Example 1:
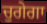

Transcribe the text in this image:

ਚੁਗੇਗਾ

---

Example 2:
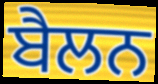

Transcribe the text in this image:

ਬੈਲਨ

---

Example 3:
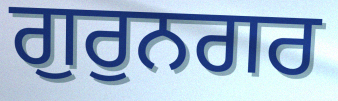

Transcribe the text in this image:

ਗੁਰੁਨਗਰ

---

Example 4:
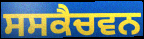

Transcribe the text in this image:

ਸਸਕੈਚਵਨ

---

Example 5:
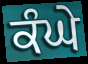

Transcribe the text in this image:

ਕੰਘੇ